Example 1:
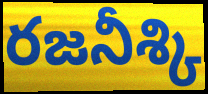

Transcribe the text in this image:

రజనీశ్కి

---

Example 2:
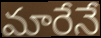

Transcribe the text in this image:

మారేనే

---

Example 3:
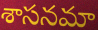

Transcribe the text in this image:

శాసనమా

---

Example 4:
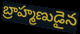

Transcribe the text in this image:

బ్రాహ్మణుడైన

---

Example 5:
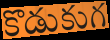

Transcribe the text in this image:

కొడుకుగ